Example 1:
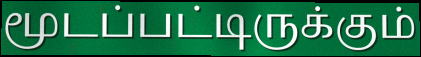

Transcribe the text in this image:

மூடப்பட்டிருக்கும்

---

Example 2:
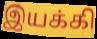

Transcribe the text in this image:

இயக்கி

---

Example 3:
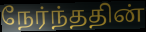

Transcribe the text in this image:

நேர்ந்ததின்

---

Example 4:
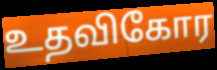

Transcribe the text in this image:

உதவிகோர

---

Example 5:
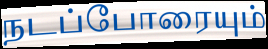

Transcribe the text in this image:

நடப்போரையும்